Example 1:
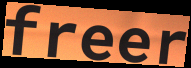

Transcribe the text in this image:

freer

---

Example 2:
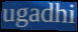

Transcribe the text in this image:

ugadhi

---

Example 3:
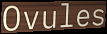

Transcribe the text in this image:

Ovules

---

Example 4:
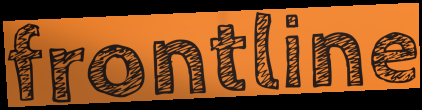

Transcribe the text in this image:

frontline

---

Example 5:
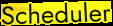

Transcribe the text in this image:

Scheduler